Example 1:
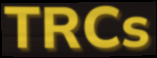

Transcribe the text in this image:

TRCs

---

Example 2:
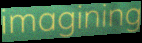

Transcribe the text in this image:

imagining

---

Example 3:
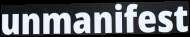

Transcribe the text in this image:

unmanifest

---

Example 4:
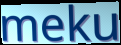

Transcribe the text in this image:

meku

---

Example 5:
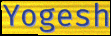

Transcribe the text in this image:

Yogesh